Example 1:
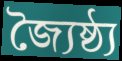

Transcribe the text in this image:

জ্যৈষ্ঠ্য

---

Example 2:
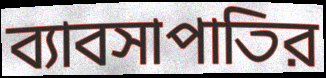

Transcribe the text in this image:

ব্যাবসাপাতির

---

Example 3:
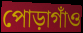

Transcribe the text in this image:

পোড়াগাঁও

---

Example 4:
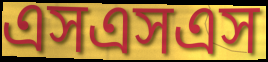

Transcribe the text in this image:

এসএসএস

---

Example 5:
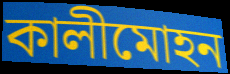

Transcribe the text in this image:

কালীমোহন